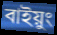
বাইয়ুং